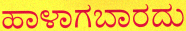
ಹಾಳಾಗಬಾರದು